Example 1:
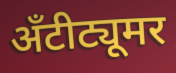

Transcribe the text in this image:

अँटीट्यूमर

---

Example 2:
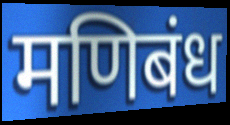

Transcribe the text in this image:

मणिबंध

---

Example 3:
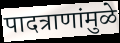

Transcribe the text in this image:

पादत्राणांमुळे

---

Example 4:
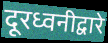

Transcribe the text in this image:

दूरध्वनीद्वारे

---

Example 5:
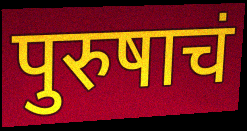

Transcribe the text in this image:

पुरुषाचं